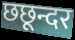
छछून्दर